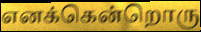
எனக்கென்றொரு